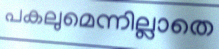
പകലുമെന്നില്ലാതെ